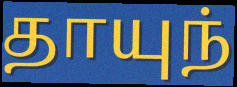
தாயுந்